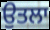
ਉਤਲਾ